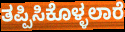
ತಪ್ಪಿಸಿಕೊಳ್ಳಲಾರೆ